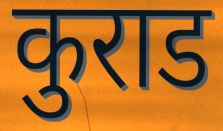
कुराड